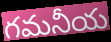
గమనీయ